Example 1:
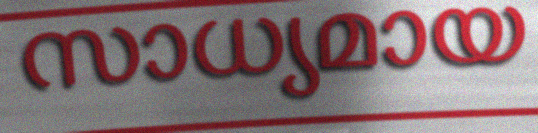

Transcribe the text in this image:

സാധ്യമായ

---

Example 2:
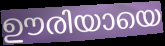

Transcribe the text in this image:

ഊരിയായെ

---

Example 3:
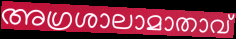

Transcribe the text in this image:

അഗ്രശാലാമാതാവ്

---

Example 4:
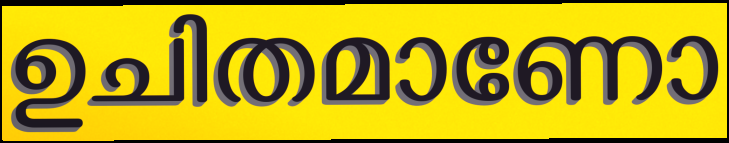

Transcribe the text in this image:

ഉചിതമാണോ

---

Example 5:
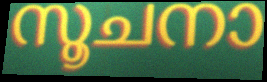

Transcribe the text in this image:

സൂചനാ